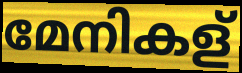
മേനികള്